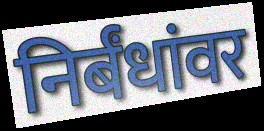
निर्बंधांवर